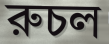
রুচল